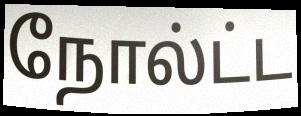
நோல்ட்ட